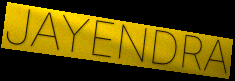
JAYENDRA